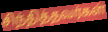
சிந்தித்தவர்கள்